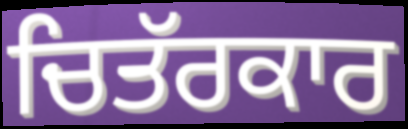
ਚਿਤੱਰਕਾਰ